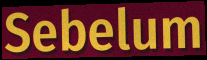
Sebelum